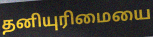
தனியுரிமையை